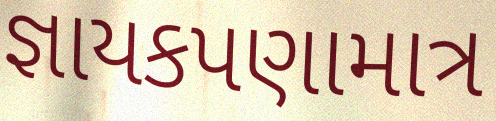
જ્ઞાયકપણામાત્ર